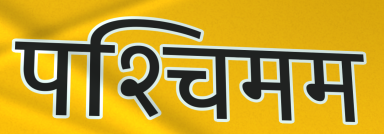
पश्चिमम